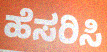
ಹೆಸರಿಸಿ